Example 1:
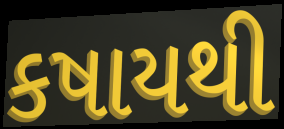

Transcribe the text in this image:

કષાયથી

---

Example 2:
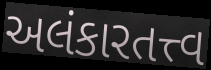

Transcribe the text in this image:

અલંકારતત્ત્વ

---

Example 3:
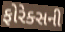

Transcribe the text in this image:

ફોરેક્સની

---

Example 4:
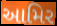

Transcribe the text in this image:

આમિર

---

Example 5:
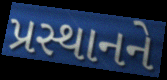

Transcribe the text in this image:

પ્રસ્થાનને